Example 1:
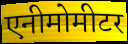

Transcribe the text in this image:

एनीमोमीटर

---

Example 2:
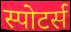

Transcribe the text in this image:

स्पोटर्स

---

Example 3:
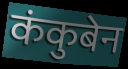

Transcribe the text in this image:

कंकुबेन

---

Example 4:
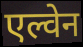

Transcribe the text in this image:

एल्वेन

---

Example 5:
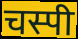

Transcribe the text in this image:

चस्पी